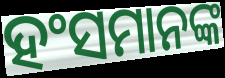
ହଂସମାନଙ୍କ